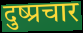
दुष्‍प्रचार